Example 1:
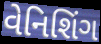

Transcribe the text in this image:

વેનિશિંગ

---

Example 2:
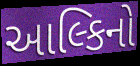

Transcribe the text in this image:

આલ્કિનો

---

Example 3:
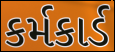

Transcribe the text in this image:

કર્મકાર્ડ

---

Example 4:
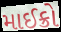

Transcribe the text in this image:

માઈક્રો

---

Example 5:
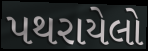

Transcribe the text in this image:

પથરાયેલો